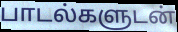
பாடல்களுடன்